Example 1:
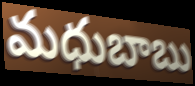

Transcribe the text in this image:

మధుబాబు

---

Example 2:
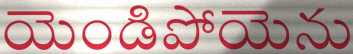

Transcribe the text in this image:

యెండిపోయెను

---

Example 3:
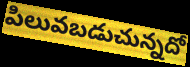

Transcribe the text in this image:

పిలువబడుచున్నదో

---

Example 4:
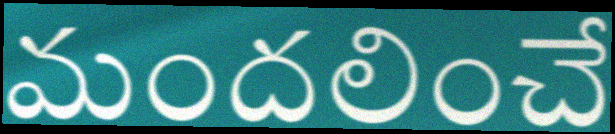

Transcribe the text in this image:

మందలించే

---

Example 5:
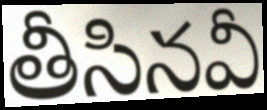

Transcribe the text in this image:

తీసినవీ